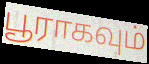
பூராகவும்